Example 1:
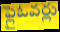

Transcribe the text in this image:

ఫ్లైఓవర్లు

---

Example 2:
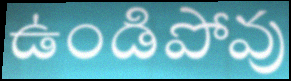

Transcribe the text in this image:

ఉండిపోవు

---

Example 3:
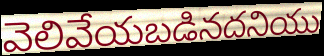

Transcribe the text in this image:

వెలివేయబడినదనియు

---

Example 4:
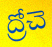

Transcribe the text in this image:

ద్రోచె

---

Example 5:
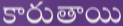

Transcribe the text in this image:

కారుతాయి